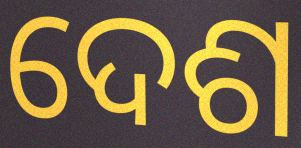
ଦେଶ